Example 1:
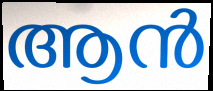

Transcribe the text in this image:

ആൻ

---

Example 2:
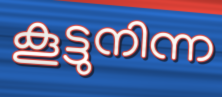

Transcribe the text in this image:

കൂട്ടുനിന്ന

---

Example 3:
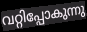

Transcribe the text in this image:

വറ്റിപ്പോകുന്നു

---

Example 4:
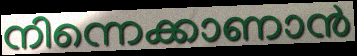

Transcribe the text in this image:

നിന്നെക്കാണാൻ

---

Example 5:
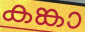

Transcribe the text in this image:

കങ്കാ